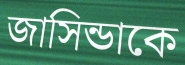
জাসিন্ডাকে